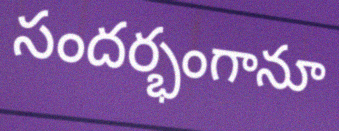
సందర్భంగానూ